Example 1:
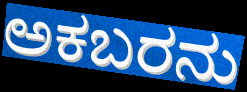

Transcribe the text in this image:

ಅಕಬರನು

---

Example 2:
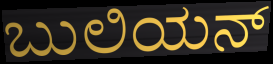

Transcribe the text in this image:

ಬುಲಿಯನ್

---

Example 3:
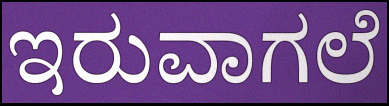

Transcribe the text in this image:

ಇರುವಾಗಲೆ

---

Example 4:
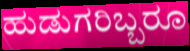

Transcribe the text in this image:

ಹುಡುಗರಿಬ್ಬರೂ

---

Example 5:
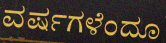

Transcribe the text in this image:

ವರ್ಷಗಳೆಂದೂ